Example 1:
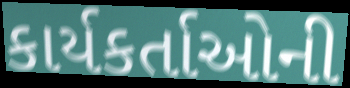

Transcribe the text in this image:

કાર્યકર્તાઓની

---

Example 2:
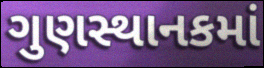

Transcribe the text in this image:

ગુણસ્થાનકમાં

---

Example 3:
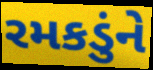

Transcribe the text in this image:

રમકડુંને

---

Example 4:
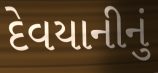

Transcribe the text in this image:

દેવયાનીનું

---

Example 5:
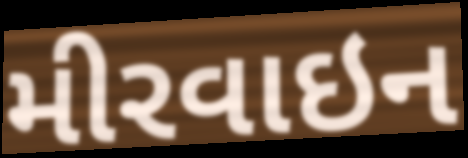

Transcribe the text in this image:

મીરવાઇન